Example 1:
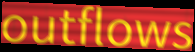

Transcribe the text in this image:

outflows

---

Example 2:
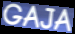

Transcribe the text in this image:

GAJA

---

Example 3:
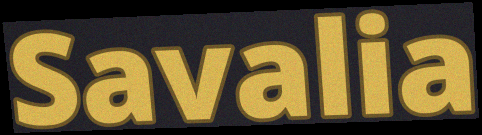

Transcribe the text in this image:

Savalia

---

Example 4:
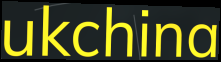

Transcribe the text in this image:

ukchina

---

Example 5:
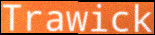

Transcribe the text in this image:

Trawick